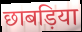
छाबड़िया